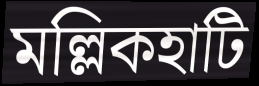
মল্লিকহাটি